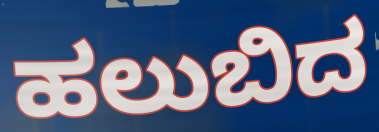
ಹಲುಬಿದ